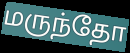
மருந்தோ